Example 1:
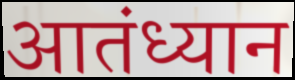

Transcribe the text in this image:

आतंध्यान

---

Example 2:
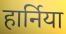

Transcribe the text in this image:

हार्निया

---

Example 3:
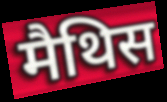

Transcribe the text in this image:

मैथिस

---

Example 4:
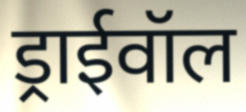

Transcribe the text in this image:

ड्राईवॉल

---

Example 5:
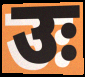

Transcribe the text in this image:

उः